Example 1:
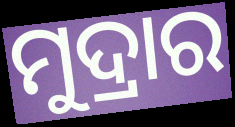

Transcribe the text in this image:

ମୁଦ୍ରାର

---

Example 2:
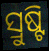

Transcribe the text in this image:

ସ୍ରୁଷ୍ଟି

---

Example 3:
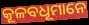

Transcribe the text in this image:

କୂଳବଧୂମାନେ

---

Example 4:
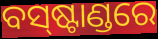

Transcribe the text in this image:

ବସ୍‍ଷ୍ଟାଣ୍ଡରେ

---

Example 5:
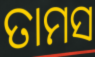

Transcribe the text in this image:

ତାମସ